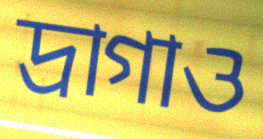
দ্রাগাও